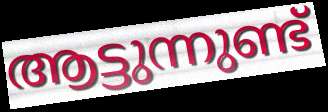
ആട്ടുന്നുണ്ട്